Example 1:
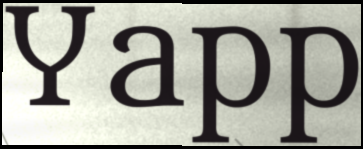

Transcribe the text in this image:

Yapp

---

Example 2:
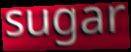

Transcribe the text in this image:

sugar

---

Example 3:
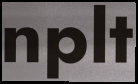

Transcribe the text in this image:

nplt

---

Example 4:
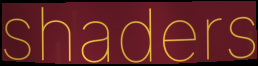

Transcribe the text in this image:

shaders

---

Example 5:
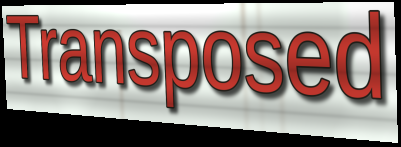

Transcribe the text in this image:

Transposed